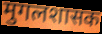
मुगलशासक